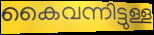
കൈവന്നിട്ടുള്ള